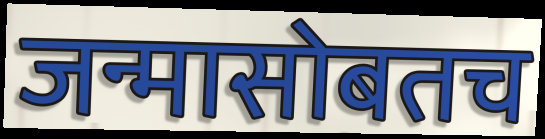
जन्मासोबतच